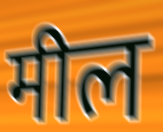
मील